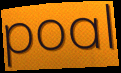
poal